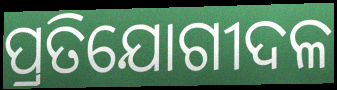
ପ୍ରତିଯୋଗୀଦଳ